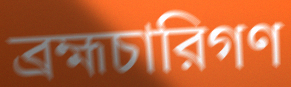
ব্রহ্মচারিগণ